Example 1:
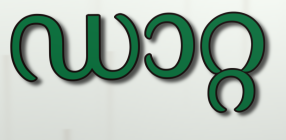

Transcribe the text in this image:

ഡാറ്റ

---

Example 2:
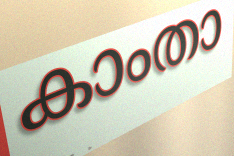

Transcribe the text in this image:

കാംതാ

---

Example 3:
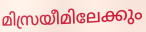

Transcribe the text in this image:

മിസ്രയീമിലേക്കും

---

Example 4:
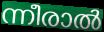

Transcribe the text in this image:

ന്നീരാൽ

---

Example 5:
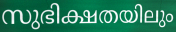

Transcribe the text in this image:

സുഭിക്ഷതയിലും